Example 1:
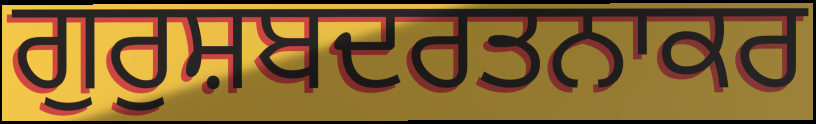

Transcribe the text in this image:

ਗੁਰੁਸ਼ਬਦਰਤਨਾਕਰ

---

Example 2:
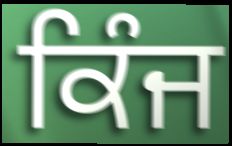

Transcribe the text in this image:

ਕਿੰਜ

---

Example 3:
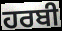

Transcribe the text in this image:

ਹਰਬੀ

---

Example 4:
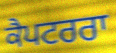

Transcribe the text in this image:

ਕੈਪਟਰਰਾ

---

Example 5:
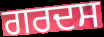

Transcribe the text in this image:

ਗਰਦਸ